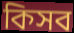
কিসব